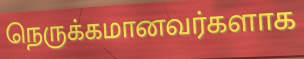
நெருக்கமானவர்களாக